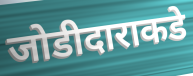
जोडीदाराकडे